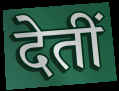
देतीं